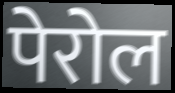
पेरोल